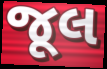
જૂલ